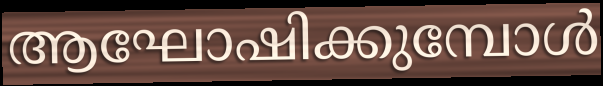
ആഘോഷിക്കുമ്പോൾ